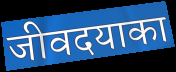
जीवदयाका